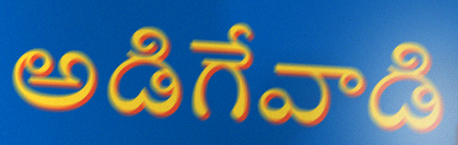
అడిగేవాడి